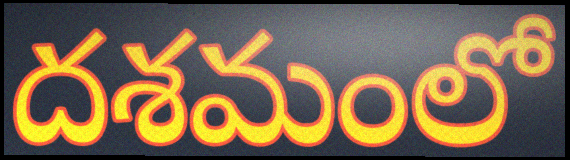
దశమంలో